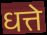
धत्ते